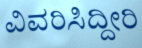
ವಿವರಿಸಿದ್ದೀರಿ